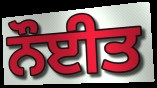
ਨੌਈਤ